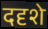
ददृशे